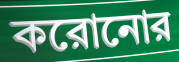
করোনোর